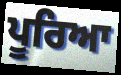
ਪੂਰਿਆ